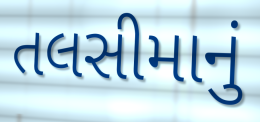
તલસીમાનું